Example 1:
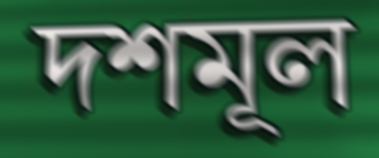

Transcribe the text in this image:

দশমূল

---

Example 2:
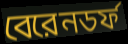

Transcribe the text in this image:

বেরেনডর্ফ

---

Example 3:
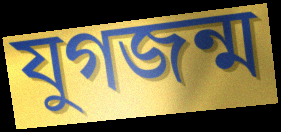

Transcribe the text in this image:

যুগজন্ম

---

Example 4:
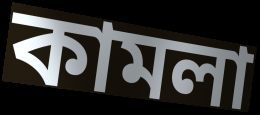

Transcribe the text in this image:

কামলা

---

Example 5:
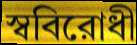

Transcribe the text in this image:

স্ববিরোধী